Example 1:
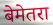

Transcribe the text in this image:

बेमेतरा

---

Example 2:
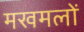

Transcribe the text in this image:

मखमलों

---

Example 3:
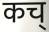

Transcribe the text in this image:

कच्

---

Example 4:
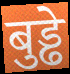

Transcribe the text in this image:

बुड्ढे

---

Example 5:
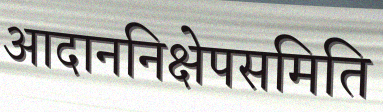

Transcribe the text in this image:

आदाननिक्षेपसमिति